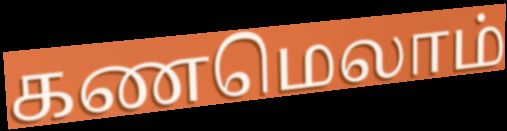
கணமெலாம்